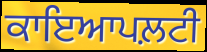
ਕਾਇਆਪਲ਼ਟੀ